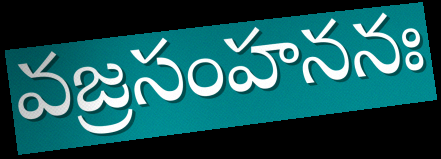
వజ్రసంహననః